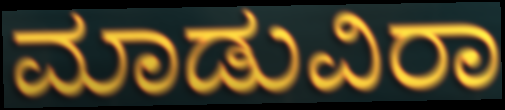
ಮಾಡುವಿರಾ